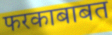
फरकाबाबत